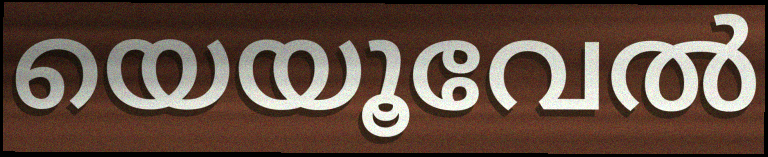
യെയൂവേൽ